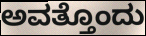
ಅವತ್ತೊಂದು